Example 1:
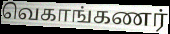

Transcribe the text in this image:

வெகாங்கணர்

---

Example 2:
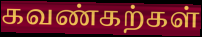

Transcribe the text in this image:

கவண்கற்கள்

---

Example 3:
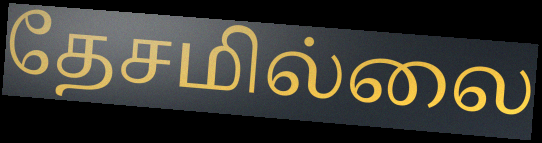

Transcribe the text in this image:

தேசமில்லை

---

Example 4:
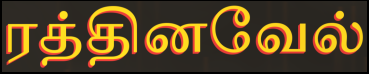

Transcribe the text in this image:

ரத்தினவேல்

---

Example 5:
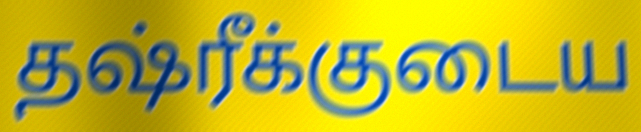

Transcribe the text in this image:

தஷ்ரீக்குடைய